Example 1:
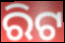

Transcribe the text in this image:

ରିଟ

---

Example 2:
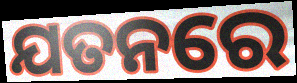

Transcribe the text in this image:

ଯତନରେ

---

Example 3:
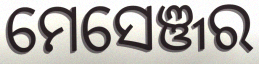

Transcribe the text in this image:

ମେସେଞ୍ଜର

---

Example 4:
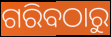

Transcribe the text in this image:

ଗରିବଠାରୁ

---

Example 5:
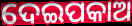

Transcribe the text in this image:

ଦେଇପକାଅ